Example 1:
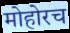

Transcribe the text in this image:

मोहोरच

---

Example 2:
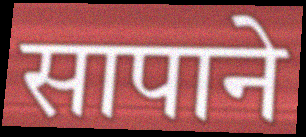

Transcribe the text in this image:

सापाने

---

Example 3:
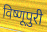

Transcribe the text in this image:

विष्णूपुरी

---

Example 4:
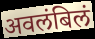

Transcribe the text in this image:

अवलंबिलं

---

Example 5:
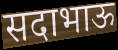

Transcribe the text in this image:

सदाभाऊ